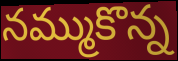
నమ్ముకొన్న